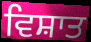
ਵਿਸ਼ਾਤ